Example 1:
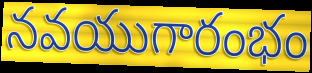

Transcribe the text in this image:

నవయుగారంభం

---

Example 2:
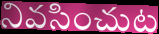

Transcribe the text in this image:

నివసించుట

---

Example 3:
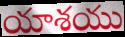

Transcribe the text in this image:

యాశయు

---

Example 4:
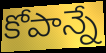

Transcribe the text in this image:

కోపాన్నే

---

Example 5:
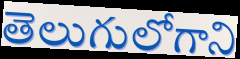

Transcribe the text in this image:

తెలుగులోగాని